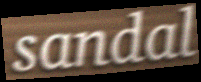
sandal